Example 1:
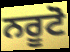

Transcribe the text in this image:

ਨਰੂਟੋ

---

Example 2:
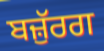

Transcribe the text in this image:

ਬਜ਼ੁੱਰਗ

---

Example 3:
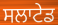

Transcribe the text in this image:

ਸਲਾਟੇਡ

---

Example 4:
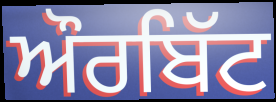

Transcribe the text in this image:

ਔਰਬਿੱਟ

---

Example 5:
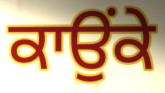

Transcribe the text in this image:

ਕਾਉਂਕੇ